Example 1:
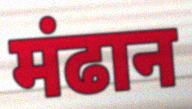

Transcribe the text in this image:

मंढान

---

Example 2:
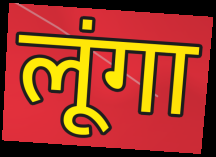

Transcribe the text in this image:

लूंगा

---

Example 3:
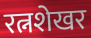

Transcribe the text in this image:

रत्नशेखर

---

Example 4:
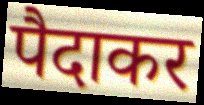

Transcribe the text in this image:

पैदाकर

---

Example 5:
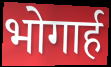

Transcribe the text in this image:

भोगार्ह